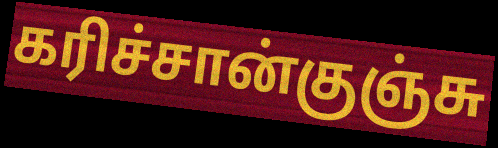
கரிச்சான்குஞ்சு